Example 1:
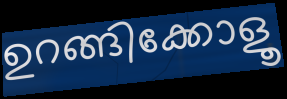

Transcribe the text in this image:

ഉറങ്ങിക്കോളൂ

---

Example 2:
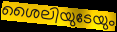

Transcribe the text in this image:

ശൈലിയുടേയും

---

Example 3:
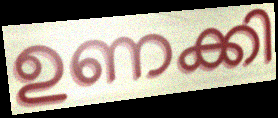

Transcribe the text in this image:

ഉണക്കി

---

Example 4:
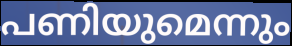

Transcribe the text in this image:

പണിയുമെന്നും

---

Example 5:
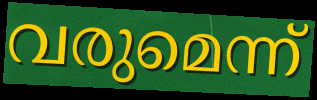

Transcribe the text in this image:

വരുമെന്ന്